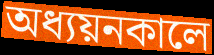
অধ্যয়নকালে